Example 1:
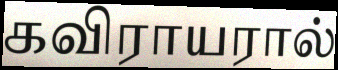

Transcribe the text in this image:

கவிராயரால்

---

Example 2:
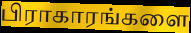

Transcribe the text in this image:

பிராகாரங்களை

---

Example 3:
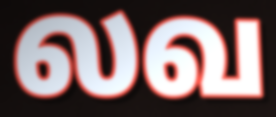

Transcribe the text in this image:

லவ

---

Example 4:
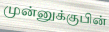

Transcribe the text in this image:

முன்னுக்குபின்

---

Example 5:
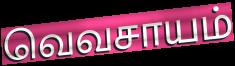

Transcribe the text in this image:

வெவசாயம்